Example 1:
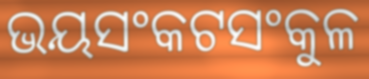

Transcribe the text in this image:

ଭୟସଂକଟସଂକୁଳ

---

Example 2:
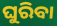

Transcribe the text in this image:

ଘୁରିବା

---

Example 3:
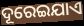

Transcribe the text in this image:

ଦୂରେଇଯାଏ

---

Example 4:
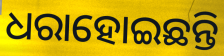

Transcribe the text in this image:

ଧରାହୋଇଛନ୍ତି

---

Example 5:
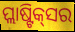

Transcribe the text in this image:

ପ୍ଲାଷ୍ଟିକ୍‌ସର